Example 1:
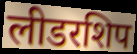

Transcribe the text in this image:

लीडरशिप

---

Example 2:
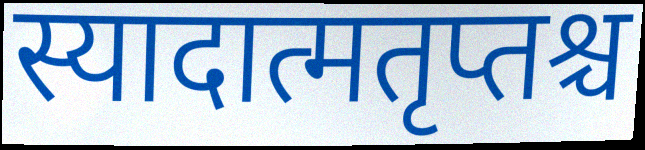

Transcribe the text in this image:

स्यादात्मतृप्तश्च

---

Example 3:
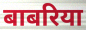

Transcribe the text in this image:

बाबरिया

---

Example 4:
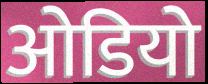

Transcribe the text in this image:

ओडियो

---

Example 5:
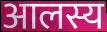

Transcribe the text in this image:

आलस्य